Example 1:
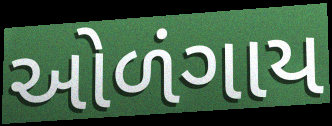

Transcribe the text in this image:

ઓળંગાય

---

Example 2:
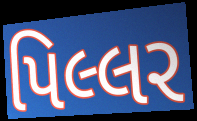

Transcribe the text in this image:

પિલ્લર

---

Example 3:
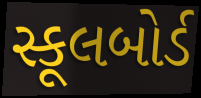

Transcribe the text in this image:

સ્કૂલબોર્ડ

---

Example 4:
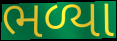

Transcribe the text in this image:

ભળ્યા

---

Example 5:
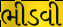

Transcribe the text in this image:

ભીડવી